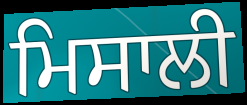
ਮਿਸਾਲੀ